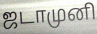
ஜடாமுனி